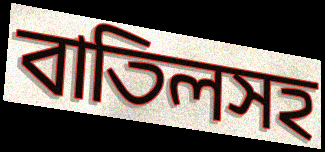
বাতিলসহ